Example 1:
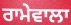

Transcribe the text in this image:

ਰਾਮੇਵਾਲਾ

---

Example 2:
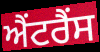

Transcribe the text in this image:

ਐਂਟਰੈਂਸ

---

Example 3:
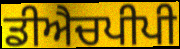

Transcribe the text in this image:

ਡੀਐਚਪੀਪੀ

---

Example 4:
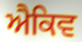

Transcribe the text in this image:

ਐਕਿਵ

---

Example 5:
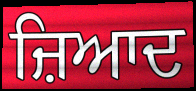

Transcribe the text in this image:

ਜ਼ਿਆਦ